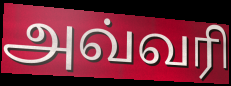
அவ்வரி